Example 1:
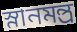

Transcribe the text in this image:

স্নানমন্ত্র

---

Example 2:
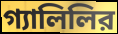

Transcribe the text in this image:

গ্যালিলির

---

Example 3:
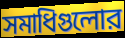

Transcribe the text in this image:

সমাধিগুলোর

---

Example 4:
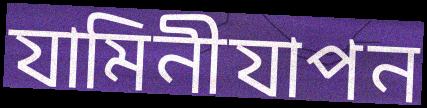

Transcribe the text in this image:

যামিনীযাপন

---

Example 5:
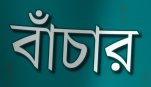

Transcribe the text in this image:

বাঁচার